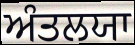
ਅੰਤਲਯਾ